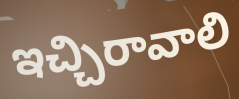
ఇచ్చిరావాలి